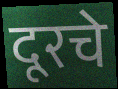
दूरचे